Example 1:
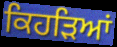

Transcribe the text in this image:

ਕਿਹੜਿਆਂ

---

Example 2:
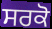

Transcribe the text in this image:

ਸਰਕੋ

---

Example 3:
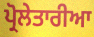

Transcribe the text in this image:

ਪ੍ਰੋਲੇਤਾਰੀਆ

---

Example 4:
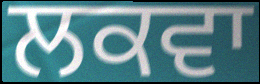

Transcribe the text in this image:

ਲਕਵਾ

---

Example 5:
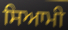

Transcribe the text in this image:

ਸਿਆਮੀ